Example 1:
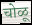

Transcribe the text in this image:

चोळू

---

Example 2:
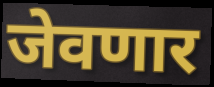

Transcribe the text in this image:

जेवणार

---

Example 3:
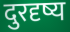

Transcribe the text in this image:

दुरदृष्य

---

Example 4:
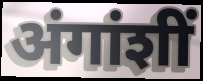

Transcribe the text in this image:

अंगांशीं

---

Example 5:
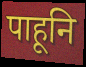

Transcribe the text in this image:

पाहूनि